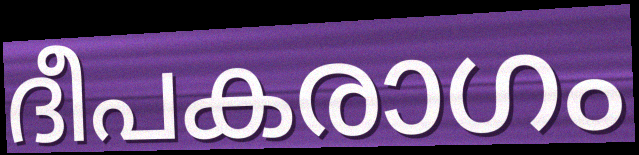
ദീപകരാഗം